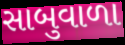
સાબુવાળા